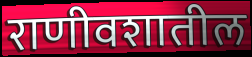
राणीवशातील